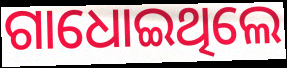
ଗାଧୋଇଥିଲେ